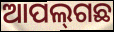
ଆପଲ୍‍ଗଛ